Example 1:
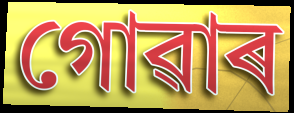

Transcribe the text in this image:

গোৱাৰ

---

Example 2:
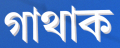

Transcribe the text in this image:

গাথাক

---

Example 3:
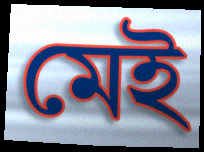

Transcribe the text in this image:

মেই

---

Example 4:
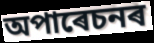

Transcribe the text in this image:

অপাৰেচনৰ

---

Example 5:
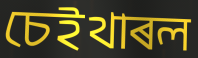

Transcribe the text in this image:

চেইথাৰল